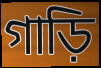
গাড়ি